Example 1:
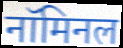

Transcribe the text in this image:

नॉमिनल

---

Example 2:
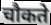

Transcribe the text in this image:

चौकते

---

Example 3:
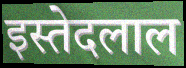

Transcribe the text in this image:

इस्तेदलाल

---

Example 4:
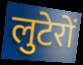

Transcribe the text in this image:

लुटेरों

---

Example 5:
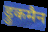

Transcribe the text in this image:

ड्रुकमैन